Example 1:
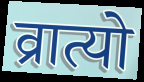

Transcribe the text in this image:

व्रात्यो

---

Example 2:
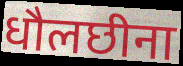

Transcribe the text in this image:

धौलछीना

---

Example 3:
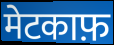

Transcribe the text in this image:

मेटकाफ़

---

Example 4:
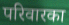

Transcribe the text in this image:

परिवारका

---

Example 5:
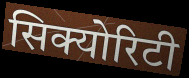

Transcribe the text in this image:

सिक्‍योरिटी